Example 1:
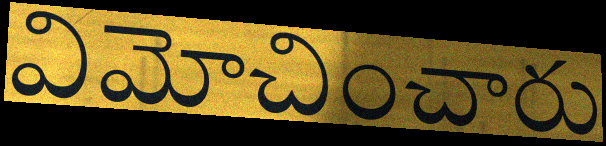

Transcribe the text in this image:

విమోచించారు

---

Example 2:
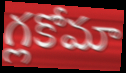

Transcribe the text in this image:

గ్లకోమా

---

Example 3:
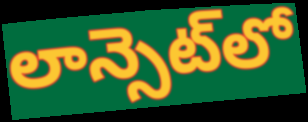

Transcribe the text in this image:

లాన్సెట్‌లో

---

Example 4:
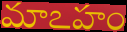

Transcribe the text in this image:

మాఽహం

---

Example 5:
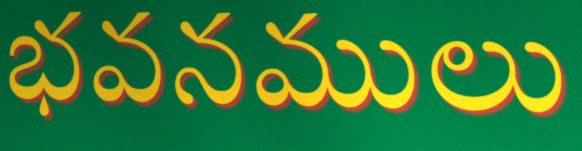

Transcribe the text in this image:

భవనములు